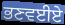
ਭਣਵਈਏ